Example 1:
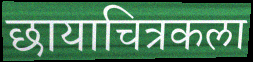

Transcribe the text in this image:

छायाचित्रकला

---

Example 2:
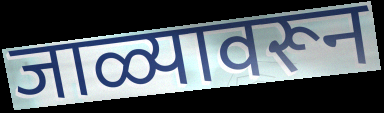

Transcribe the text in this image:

जाळ्यावरून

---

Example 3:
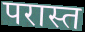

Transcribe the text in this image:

परास्त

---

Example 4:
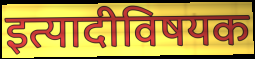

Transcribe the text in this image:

इत्यादीविषयक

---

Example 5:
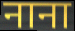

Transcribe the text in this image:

नाना